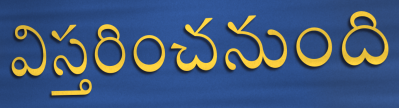
విస్తరించనుంది